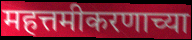
महत्तमीकरणाच्या